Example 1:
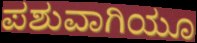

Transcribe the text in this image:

ಪಶುವಾಗಿಯೂ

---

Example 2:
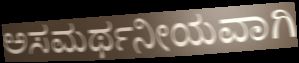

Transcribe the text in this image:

ಅಸಮರ್ಥನೀಯವಾಗಿ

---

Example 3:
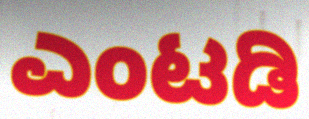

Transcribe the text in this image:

ಎಂಟಡಿ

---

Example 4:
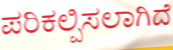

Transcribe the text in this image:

ಪರಿಕಲ್ಪಿಸಲಾಗಿದೆ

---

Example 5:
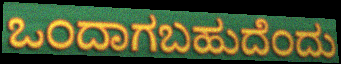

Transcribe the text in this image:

ಒಂದಾಗಬಹುದೆಂದು